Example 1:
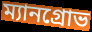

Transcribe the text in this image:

ম্যানগ্রোভ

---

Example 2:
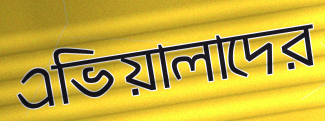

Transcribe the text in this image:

এভিয়ালাদের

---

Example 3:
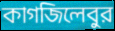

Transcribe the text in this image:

কাগজিলেবুর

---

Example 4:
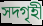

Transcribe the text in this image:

সদগৃহী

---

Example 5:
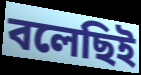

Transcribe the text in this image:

বলেছিই